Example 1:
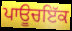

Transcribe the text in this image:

ਪਾਊਚਇੱਕ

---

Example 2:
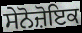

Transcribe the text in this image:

ਸੇਨੋਜ਼ੋਇਕ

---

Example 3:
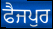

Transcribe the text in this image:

ਫੈਜਪੁਰ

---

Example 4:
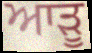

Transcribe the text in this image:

ਆੜੂ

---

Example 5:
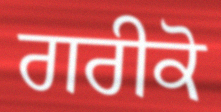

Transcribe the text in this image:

ਗਰੀਕੋ